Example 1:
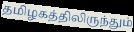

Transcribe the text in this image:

தமிழகத்திலிருந்தும்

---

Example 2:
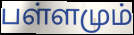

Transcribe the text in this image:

பள்ளமும்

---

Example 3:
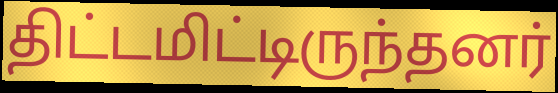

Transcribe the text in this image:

திட்டமிட்டிருந்தனர்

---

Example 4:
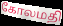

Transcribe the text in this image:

கோலமதி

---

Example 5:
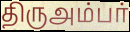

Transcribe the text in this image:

திருஅம்பர்